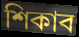
শিকাব